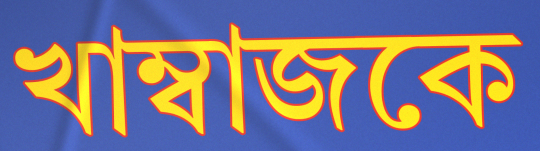
খাম্বাজকে